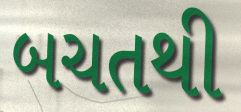
બચતથી